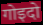
गोइदो